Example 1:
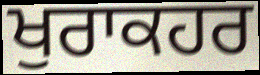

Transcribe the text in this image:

ਖੁਰਾਕਹਰ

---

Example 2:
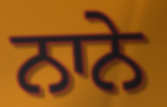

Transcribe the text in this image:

ਨਾਨੇ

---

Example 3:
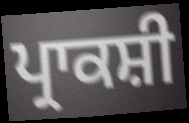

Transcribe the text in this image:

ਪ੍ਰਾਕਸ਼ੀ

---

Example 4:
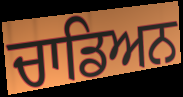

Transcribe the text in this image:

ਚਾਡਿਅਨ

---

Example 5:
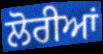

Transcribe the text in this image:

ਲੋਰੀਆਂ